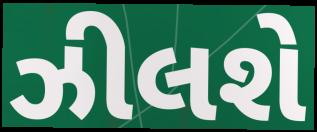
ઝીલશે